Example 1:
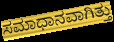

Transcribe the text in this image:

ಸಮಾಧಾನವಾಗಿತ್ತು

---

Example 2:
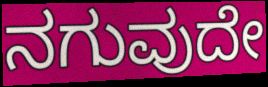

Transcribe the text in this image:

ನಗುವುದೇ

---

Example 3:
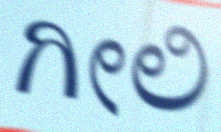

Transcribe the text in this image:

ಗೀಲಿ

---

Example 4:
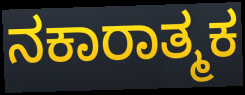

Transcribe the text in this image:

ನಕಾರಾತ್ಮಕ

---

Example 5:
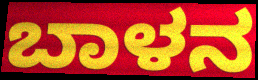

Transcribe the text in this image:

ಬಾಳನ